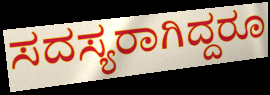
ಸದಸ್ಯರಾಗಿದ್ದರೂ